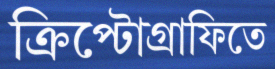
ক্রিপ্টোগ্রাফিতে